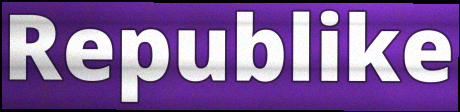
Republike